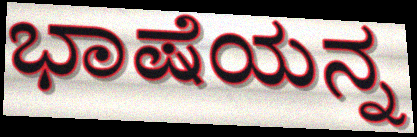
ಭಾಷೆಯನ್ನ